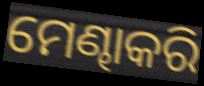
ମେଣ୍ଢାକରି